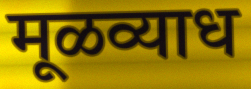
मूळव्याध